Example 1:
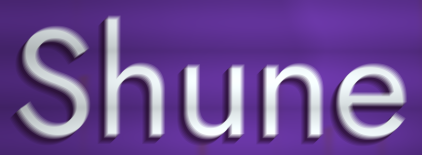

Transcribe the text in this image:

Shune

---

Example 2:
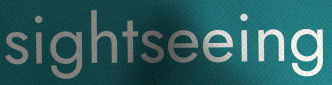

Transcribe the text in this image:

sightseeing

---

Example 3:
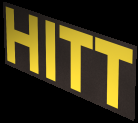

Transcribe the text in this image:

HITT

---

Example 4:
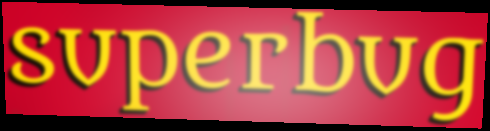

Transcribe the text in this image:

superbug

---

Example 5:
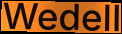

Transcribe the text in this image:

Wedell